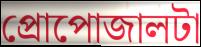
প্রোপোজালটা